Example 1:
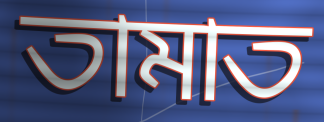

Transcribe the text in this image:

তামাত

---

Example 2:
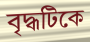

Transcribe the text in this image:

বৃদ্ধটিকে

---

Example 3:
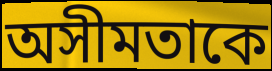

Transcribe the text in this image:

অসীমতাকে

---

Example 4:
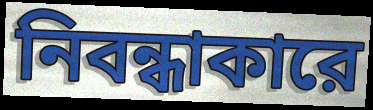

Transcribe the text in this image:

নিবন্ধাকারে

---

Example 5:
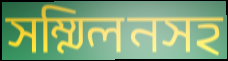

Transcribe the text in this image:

সম্মিলনসহ